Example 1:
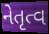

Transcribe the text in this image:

નેતૃત્વ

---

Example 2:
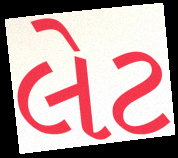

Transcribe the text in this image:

લેટ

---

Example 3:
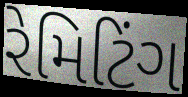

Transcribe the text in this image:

રેમિટિંગ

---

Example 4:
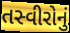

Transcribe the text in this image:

તસ્વીરોનું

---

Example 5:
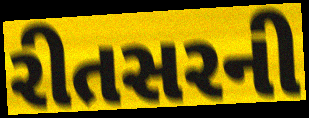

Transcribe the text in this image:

રીતસરની